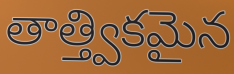
తాత్త్వికమైన